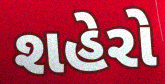
શહેરો